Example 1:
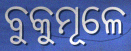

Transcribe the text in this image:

ବୁକୁମୂଳେ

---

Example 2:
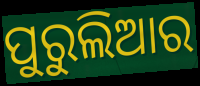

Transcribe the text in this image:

ପୁରୁଲିଆର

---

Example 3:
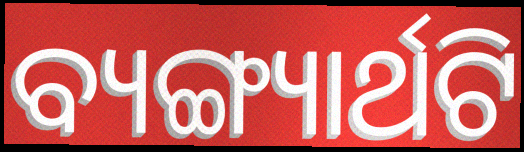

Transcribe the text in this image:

ବ୍ୟଙ୍ଗ୍ୟାର୍ଥଟି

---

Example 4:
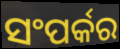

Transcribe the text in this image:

ସଂପର୍କର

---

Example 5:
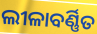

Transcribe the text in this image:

ଲୀଳାବର୍ଣ୍ଣିତ